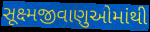
સૂક્ષ્મજીવાણુઓમાંથી